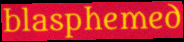
blasphemed